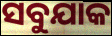
ସବୁଯାକ